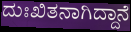
ದುಃಖಿತನಾಗಿದ್ದಾನೆ